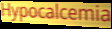
Hypocalcemia